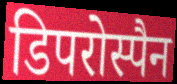
डिपरोस्पैन